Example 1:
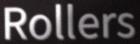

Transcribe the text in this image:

Rollers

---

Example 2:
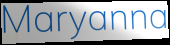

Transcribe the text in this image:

Maryanna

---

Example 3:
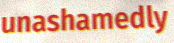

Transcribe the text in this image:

unashamedly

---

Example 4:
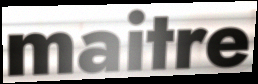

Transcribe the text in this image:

maitre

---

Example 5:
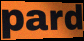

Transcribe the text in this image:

pard